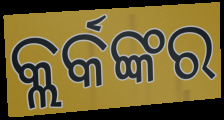
କ୍ଲର୍କଙ୍କର